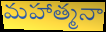
మహాత్మనా